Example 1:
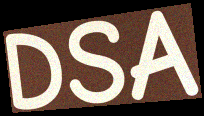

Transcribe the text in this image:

DSA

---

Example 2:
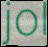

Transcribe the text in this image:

jol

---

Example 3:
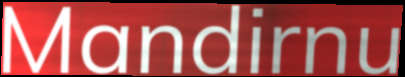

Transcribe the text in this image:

Mandirnu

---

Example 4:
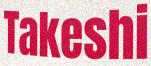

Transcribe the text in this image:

Takeshi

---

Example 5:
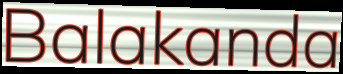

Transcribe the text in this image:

Balakanda